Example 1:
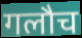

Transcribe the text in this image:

गलौच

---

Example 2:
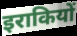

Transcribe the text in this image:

इराकियों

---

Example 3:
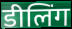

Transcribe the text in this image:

डीलिंग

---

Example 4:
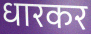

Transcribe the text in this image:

धारकर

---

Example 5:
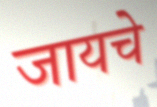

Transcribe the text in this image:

जायचे